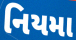
નિયમા